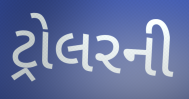
ટ્રોલરની